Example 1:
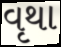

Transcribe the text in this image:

વૃથા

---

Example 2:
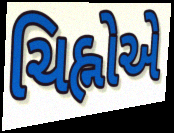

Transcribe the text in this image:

ચિહ્નોએ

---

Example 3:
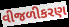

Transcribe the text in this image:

વીજળીકરણ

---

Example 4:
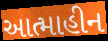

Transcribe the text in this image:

આત્માહીન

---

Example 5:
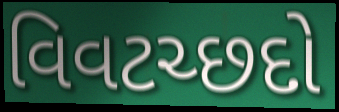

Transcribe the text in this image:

વિવટચ્છદો